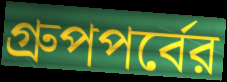
গ্রুপপর্বের